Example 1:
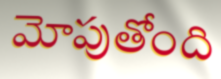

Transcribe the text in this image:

మోపుతోంది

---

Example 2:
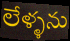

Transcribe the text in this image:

లేళ్ళను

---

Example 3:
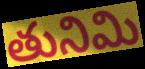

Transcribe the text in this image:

తునిమి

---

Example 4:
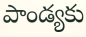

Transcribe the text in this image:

పాండ్యకు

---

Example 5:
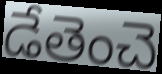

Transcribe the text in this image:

డేతెంచె